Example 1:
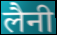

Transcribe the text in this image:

लैनी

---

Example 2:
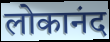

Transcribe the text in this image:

लोकानंद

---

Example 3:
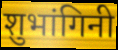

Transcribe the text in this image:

शुभांगिनी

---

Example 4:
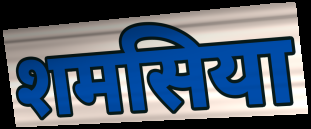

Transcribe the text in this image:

शमसिया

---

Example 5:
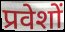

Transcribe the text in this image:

प्रवेशों